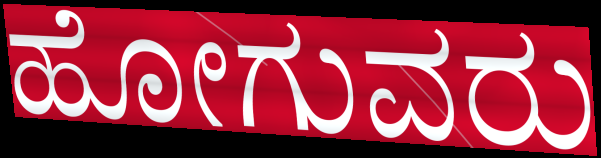
ಹೋಗುವರು